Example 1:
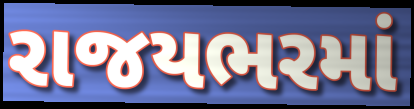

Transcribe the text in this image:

રાજયભરમાં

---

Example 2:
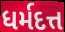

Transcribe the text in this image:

ધર્મદત્ત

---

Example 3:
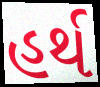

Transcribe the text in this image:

હર્થ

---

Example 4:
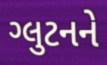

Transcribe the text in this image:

ગ્લુટનને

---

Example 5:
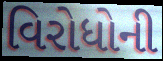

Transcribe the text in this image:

વિરોધોની